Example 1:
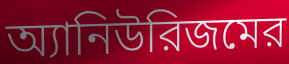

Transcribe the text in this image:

অ্যানিউরিজমের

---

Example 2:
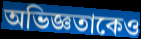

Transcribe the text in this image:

অভিজ্ঞতাকেও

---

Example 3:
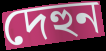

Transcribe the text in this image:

দেহুন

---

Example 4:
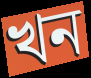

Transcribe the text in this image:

খন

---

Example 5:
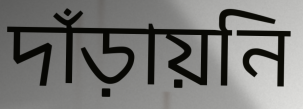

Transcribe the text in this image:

দাঁড়ায়নি